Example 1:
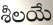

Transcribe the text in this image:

శీలయే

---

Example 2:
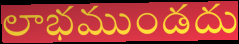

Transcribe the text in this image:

లాభముండదు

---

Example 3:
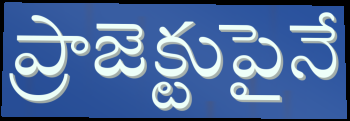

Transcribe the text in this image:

ప్రాజెక్టుపైనే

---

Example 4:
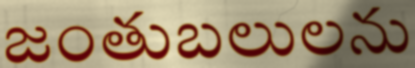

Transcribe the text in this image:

జంతుబలులను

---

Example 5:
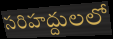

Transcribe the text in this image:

సరిహద్దులలో